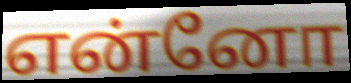
என்னோ